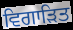
ਵਿਗਾੜਿਤ